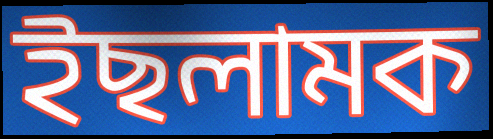
ইছলামক